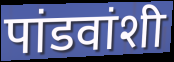
पांडवांशी